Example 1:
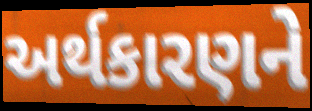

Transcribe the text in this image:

અર્થકારણને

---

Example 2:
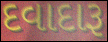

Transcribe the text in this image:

દવાદારૂ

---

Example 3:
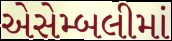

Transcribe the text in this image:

એસેમ્બલીમાં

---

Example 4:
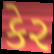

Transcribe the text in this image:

કેર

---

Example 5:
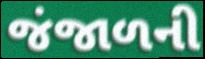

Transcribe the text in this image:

જંજાળની